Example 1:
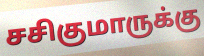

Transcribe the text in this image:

சசிகுமாருக்கு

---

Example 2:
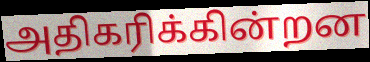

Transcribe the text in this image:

அதிகரிக்கின்றன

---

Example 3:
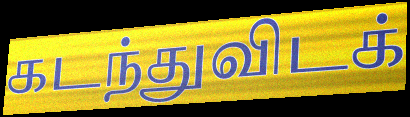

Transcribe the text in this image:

கடந்துவிடக்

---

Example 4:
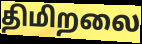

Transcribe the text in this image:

திமிறலை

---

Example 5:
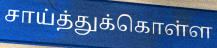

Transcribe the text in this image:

சாய்த்துக்கொள்ள